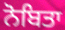
ਨੋਬਿਤਾ